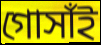
গোসাঁই